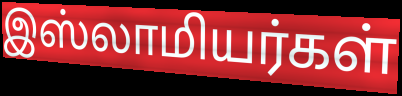
இஸ்லாமியர்கள்